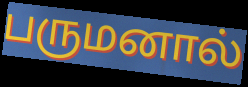
பருமனால்